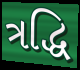
ત્રદ્ધિ